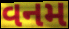
વનમ